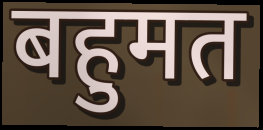
बहुमत